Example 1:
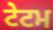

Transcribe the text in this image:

ਟੇਟਮ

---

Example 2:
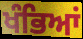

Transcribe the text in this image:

ਖੰਭਿਆਂ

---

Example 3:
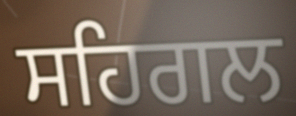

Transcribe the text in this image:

ਸਹਿਗਲ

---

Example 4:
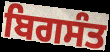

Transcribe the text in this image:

ਬਿਗਸੰਤ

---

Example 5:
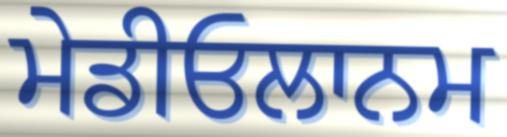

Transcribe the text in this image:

ਮੇਡੀਓਲਾਨਮ